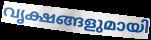
വൃക്ഷങ്ങളുമായി